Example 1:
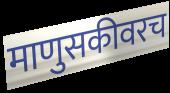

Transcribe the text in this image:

माणुसकीवरच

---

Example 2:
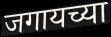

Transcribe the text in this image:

जगायच्या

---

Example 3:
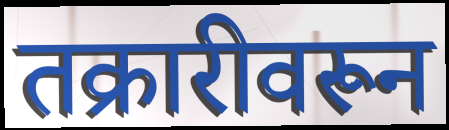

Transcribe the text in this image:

तक्रारीवरून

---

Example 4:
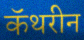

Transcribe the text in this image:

कॅथरीन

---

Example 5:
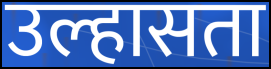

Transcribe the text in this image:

उल्हासता